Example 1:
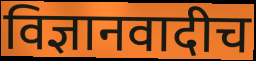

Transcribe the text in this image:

विज्ञानवादीच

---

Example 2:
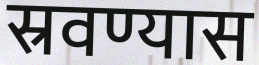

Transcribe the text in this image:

स्रवण्यास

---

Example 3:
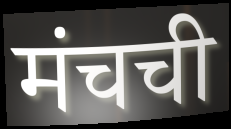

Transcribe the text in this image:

मंचची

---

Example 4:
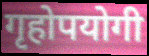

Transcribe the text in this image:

गृहोपयोगी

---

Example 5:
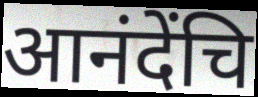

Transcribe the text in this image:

आनंदेंचि